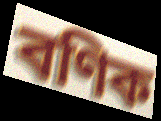
বণিক